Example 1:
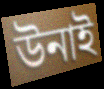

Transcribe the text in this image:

উনাই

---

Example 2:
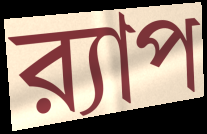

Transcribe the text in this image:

র‍্যাপ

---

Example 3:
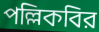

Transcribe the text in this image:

পল্লিকবির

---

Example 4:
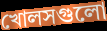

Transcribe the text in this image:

খোলসগুলো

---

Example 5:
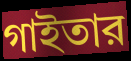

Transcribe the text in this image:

গাইতার